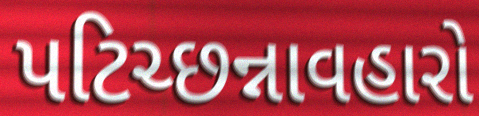
પટિચ્છન્નાવહારો